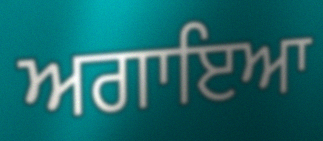
ਅਗਾਇਆ